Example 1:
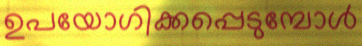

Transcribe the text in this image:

ഉപയോഗിക്കപ്പെടുമ്പോൾ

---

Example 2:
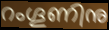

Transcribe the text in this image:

റംഗൂണിനു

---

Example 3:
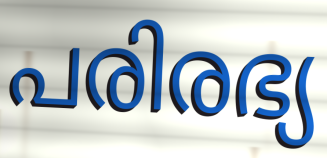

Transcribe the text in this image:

പരിരഭ്യ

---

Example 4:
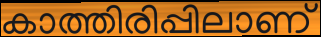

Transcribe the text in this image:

കാത്തിരിപ്പിലാണ്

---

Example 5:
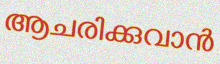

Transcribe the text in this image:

ആചരിക്കുവാൻ